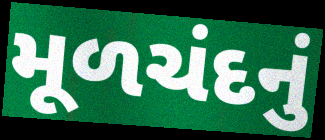
મૂળચંદનું